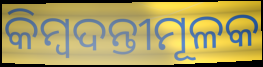
କିମ୍ବଦନ୍ତୀମୂଳକ